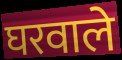
घरवाले